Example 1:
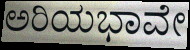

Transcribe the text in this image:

ಅರಿಯಭಾವೇ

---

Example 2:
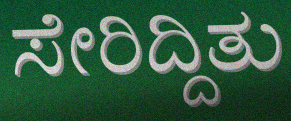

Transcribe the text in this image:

ಸೇರಿದ್ದಿತು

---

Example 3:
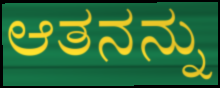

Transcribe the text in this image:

ಆತನನ್ನು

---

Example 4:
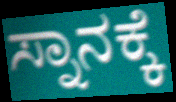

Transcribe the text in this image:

ಸ್ನಾನಕ್ಕೆ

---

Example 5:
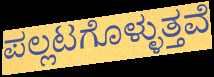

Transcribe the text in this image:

ಪಲ್ಲಟಗೊಳ್ಳುತ್ತವೆ